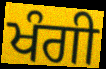
ਖੰਗੀ